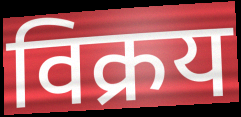
विक्रय